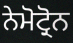
ਨੇਮੋਟ੍ਰੋਨ